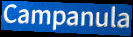
Campanula